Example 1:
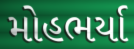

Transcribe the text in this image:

મોહભર્યા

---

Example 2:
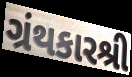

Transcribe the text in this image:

ગ્રંથકારશ્રી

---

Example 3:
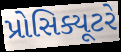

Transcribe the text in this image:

પ્રોસિક્યૂટરે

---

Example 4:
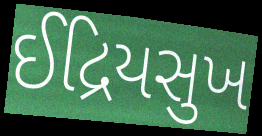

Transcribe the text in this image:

ઈદ્રિયસુખ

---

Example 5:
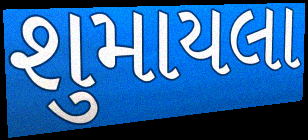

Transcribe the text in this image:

શુમાયલા